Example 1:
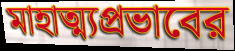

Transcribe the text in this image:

মাহাত্ম্যপ্রভাবের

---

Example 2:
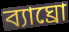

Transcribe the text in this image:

ব্যাঘ্রো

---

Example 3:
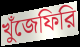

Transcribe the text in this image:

খুঁজেফিরি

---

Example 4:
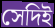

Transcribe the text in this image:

সেদিই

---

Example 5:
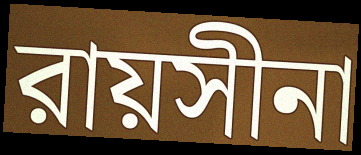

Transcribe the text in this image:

রায়সীনা